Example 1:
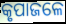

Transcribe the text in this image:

କୃପାଜଳେ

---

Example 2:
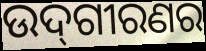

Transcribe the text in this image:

ଉଦ୍‌ଗୀରଣର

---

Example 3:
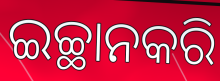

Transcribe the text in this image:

ଇଚ୍ଛାନକରି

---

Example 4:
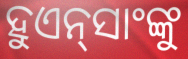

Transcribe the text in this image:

ହୁଏନ୍‌ସାଂଙ୍କୁ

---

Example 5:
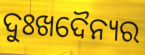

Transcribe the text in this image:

ଦୁଃଖଦୈନ୍ୟର